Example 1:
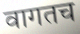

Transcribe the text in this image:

वागतच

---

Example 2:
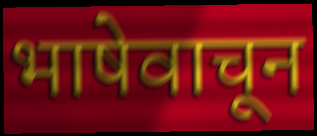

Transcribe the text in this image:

भाषेवाचून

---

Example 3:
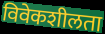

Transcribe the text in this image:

विवेकशीलता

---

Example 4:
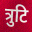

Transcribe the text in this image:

त्रुटि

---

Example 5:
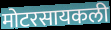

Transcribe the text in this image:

मोटरसायकली